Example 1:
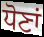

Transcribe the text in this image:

ਧੋਣਾਂ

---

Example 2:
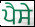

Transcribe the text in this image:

ਪੈਸੇ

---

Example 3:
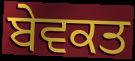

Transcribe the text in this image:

ਬੇਵਕਤ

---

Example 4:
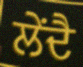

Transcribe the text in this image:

ਲੇਂਦੈ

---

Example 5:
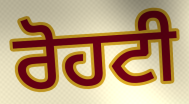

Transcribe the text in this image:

ਰੋਹਟੀ